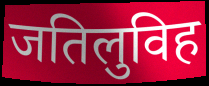
जतिलुविह